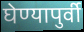
घेण्यापुर्वी